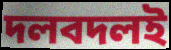
দলবদলই